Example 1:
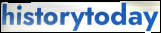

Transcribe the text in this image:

historytoday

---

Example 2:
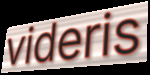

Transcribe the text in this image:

videris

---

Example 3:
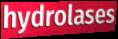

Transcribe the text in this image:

hydrolases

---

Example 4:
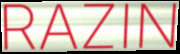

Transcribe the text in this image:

RAZIN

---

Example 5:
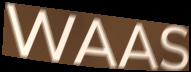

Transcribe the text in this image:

WAAS